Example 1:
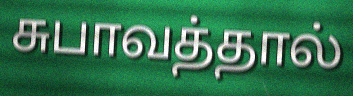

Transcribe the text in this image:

சுபாவத்தால்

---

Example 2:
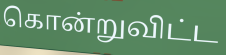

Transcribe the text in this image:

கொன்றுவிட்ட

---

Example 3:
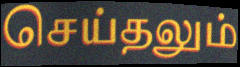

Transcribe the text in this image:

செய்தலும்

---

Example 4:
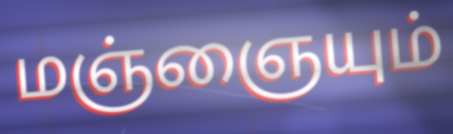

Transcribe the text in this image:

மஞ்ஞையும்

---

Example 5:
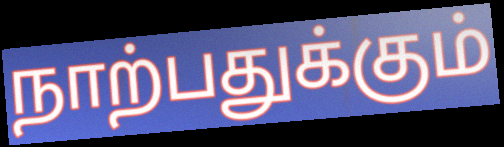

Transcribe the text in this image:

நாற்பதுக்கும்